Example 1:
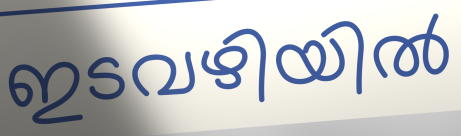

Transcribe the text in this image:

ഇടവഴിയിൽ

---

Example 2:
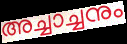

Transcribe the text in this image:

അച്ചാച്ചനും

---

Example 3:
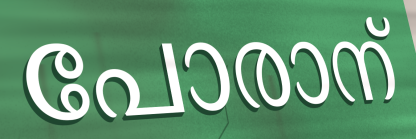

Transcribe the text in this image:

പോരാന്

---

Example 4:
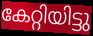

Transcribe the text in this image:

കേറ്റിയിട്ടു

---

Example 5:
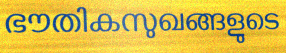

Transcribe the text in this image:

ഭൗതികസുഖങ്ങളുടെ